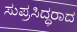
ಸುಪ್ರಸಿದ್ಧರಾದ